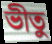
ভীতু